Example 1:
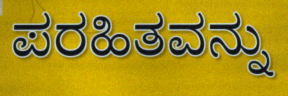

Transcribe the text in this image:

ಪರಹಿತವನ್ನು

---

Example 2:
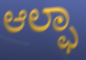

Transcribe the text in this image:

ಆಲ್ಫಾ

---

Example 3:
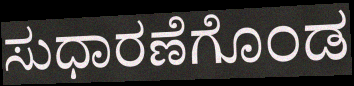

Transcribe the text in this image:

ಸುಧಾರಣೆಗೊಂಡ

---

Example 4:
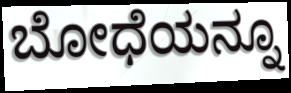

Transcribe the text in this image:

ಬೋಧೆಯನ್ನೂ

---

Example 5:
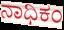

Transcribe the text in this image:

ನಾಧಿಕಂ